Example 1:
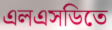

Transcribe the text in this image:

এলএসডিতে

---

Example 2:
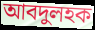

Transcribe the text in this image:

আবদুলহক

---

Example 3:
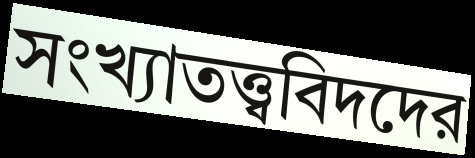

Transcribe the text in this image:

সংখ্যাতত্ত্ববিদদের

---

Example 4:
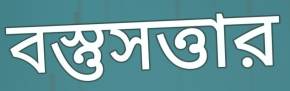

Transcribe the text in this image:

বস্তুসত্তার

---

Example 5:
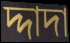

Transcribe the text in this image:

দ্দাদা